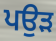
ਪਉੜ